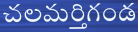
చలమర్తిగండ